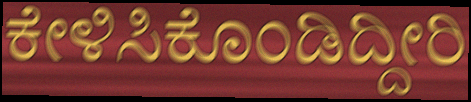
ಕೇಳಿಸಿಕೊಂಡಿದ್ದೀರಿ